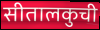
सीतालकुची